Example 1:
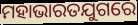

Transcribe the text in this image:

ମହାଭାରତଯୁଗରେ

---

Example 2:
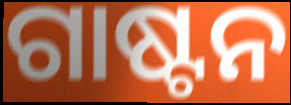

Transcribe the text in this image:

ଗାଷ୍ଟନ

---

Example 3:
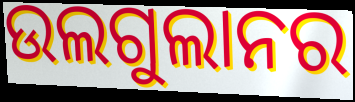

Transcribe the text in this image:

ଉଲଗୁଲାନର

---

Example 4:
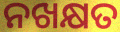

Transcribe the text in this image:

ନଖକ୍ଷତ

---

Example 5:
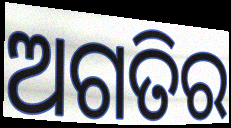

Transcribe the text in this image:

ଅଗତିର